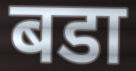
बडा